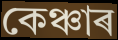
কেঞ্চাৰ